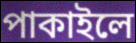
পাকাইলে